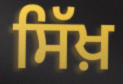
ਸਿੱਖ਼